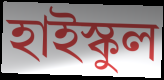
হাইস্কুল